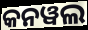
କନୱଲ